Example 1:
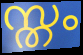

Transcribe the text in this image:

സ്തം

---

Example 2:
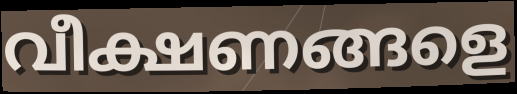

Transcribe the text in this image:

വീക്ഷണങ്ങളെ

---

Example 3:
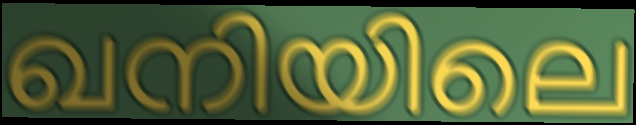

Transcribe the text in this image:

ഖനിയിലെ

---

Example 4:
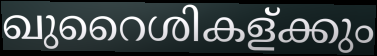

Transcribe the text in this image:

ഖുറൈശികള്ക്കും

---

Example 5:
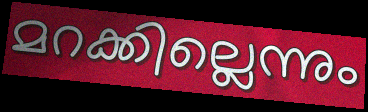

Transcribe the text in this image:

മറക്കില്ലെന്നും